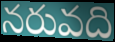
నరువది